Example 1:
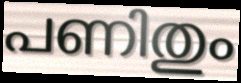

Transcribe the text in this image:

പണിതും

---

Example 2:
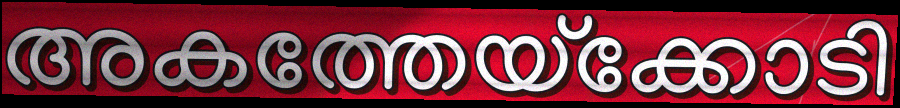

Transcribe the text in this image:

അകത്തേയ്‌ക്കോടി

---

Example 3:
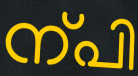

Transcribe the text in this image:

ന്പി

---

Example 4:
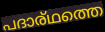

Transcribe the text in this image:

പദാര്ഥത്തെ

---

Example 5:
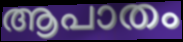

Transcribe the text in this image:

ആപാതം